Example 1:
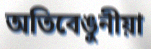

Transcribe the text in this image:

অতিবেঙুনীয়া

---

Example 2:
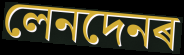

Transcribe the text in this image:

লেনদেনৰ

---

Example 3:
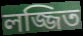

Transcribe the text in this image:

লজ্জিত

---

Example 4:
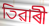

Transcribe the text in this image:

তিৱাৰী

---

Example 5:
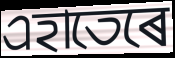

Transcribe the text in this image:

এহাতেৰে